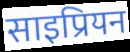
साइप्रियन